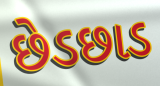
છેડછાડ